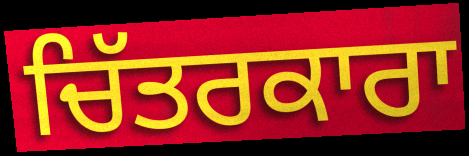
ਚਿੱਤਰਕਾਰਾ